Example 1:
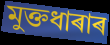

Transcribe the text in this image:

মুক্তধাৰাৰ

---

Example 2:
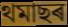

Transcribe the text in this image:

থমাছৰ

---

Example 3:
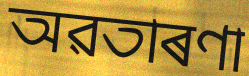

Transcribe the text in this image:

অৱতাৰণা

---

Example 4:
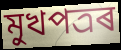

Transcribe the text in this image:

মুখপত্ৰৰ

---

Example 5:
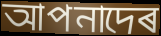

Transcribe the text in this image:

আপনাদেৰ